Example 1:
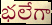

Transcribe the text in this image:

భలేగా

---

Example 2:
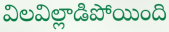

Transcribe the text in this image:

విలవిల్లాడిపోయింది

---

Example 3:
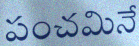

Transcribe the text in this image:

పంచమినే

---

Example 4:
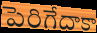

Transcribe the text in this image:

పెరిగేదాకా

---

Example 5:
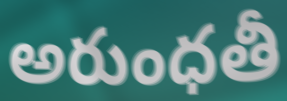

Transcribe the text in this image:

అరుంధతీ